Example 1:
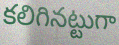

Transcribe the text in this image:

కలిగినట్టుగా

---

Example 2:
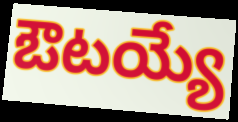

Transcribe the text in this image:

ఔటయ్యే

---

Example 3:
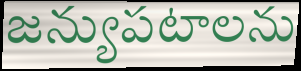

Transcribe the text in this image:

జన్యుపటాలను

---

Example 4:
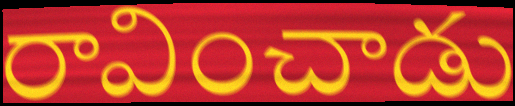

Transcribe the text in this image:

రావించాడు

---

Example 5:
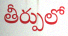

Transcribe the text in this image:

తీర్పులో